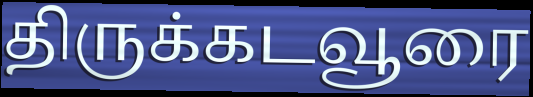
திருக்கடவூரை